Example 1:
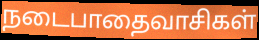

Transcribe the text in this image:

நடைபாதைவாசிகள்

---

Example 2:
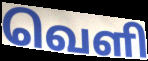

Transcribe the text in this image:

வெளி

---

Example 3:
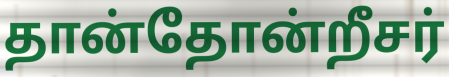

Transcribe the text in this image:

தான்தோன்றீசர்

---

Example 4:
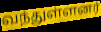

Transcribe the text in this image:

வந்துள்ளனர்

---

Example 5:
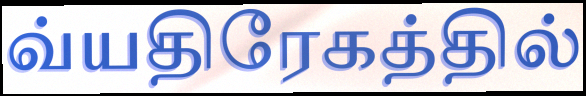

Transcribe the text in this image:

வ்யதிரேகத்தில்